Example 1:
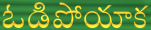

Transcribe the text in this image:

ఓడిపోయాక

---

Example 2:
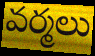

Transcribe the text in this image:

వర్మలు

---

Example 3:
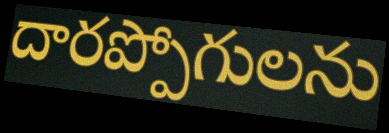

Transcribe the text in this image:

దారప్పోగులను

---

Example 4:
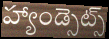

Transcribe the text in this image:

హ్యాండ్సెట్స్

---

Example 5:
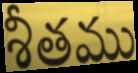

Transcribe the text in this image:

శీతము